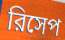
রিসেপ